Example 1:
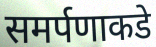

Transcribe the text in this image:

समर्पणाकडे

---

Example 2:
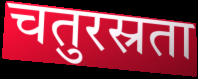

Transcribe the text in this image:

चतुरस्रता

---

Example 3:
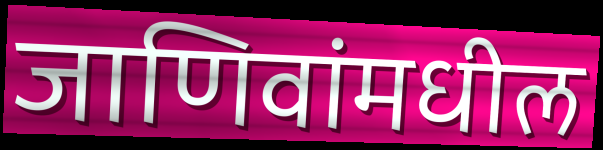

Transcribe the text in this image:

जाणिवांमधील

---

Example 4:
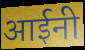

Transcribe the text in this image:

आईनी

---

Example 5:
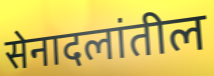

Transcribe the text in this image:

सेनादलांतील